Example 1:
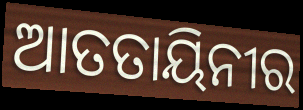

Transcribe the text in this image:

ଆତତାୟିନୀର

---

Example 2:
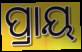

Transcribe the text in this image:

ପ୍ରାୟ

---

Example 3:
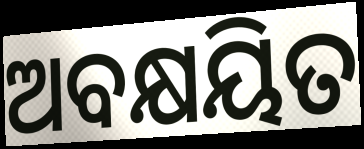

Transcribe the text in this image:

ଅବକ୍ଷୟିତ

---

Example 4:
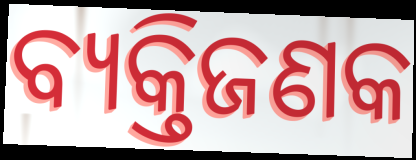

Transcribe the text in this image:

ବ୍ୟକ୍ତିଜଣକ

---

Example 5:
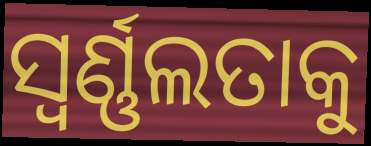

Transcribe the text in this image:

ସ୍ଵର୍ଣ୍ଣଲତାକୁ